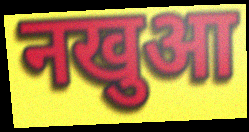
नखुआ